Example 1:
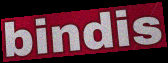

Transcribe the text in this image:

bindis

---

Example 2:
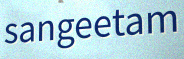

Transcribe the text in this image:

sangeetam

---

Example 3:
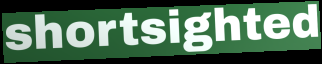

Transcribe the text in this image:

shortsighted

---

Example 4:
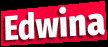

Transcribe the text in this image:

Edwina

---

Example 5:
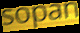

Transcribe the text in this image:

sopan